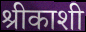
श्रीकाशी